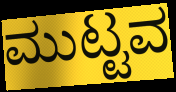
ಮುಟ್ಟವ